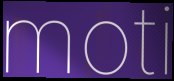
moti